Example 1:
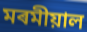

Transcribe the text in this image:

মৰমীয়াল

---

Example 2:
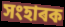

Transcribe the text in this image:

সংহাৰক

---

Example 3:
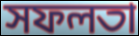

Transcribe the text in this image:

সফলতা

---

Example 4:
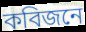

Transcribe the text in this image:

কবিজনে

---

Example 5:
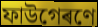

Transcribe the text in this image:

ফাউগেৰণে